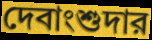
দেবাংশুদার